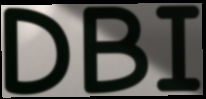
DBI